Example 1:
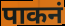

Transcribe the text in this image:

पाकनं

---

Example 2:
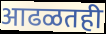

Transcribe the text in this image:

आढळतही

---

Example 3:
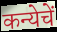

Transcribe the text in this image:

कन्येचें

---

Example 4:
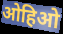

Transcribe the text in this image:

ओहिओ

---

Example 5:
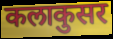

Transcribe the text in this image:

कलाकुसर